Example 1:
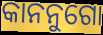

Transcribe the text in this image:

କାନନୁଗୋ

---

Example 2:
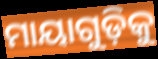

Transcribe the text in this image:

ମାୟାଗୁଡ଼ିକୁ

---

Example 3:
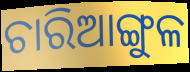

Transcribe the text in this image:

ଚାରିଆଙ୍ଗୁଳ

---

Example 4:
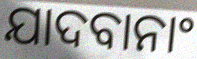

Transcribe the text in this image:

ଯାଦବାନାଂ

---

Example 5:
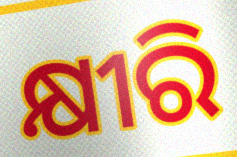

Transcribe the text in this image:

କ୍ଷୀରି